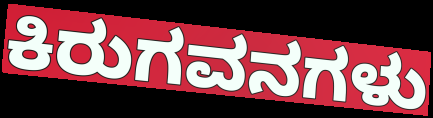
ಕಿರುಗವನಗಳು